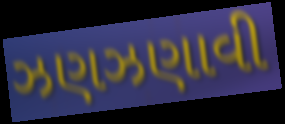
ઝણઝણાવી